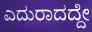
ಎದುರಾದದ್ದೇ